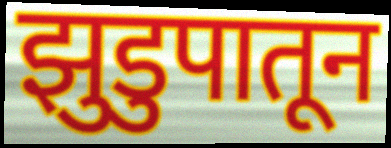
झुडुपातून